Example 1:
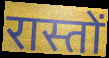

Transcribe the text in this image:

रास्तों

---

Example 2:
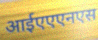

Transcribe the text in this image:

आईएएएनएस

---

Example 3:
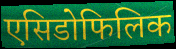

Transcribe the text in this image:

एसिडोफिलिक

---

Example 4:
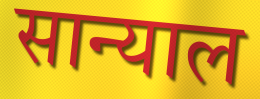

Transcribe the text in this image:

सान्याल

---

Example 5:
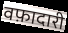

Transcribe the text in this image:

वफ़ादारी